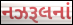
નઝરૂલનાં